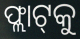
ଫ୍ଲାଟ୍‌କୁ